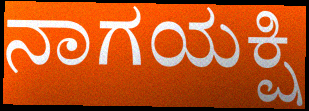
ನಾಗಯಕ್ಷಿ